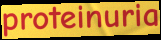
proteinuria